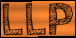
LLP